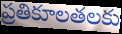
ప్రతికూలతలకు